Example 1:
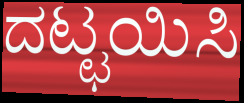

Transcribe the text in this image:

ದಟ್ಟಯಿಸಿ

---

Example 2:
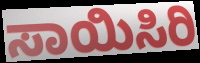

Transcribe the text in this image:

ಸಾಯಿಸಿರಿ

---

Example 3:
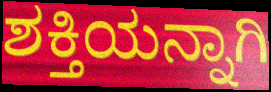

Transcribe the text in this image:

ಶಕ್ತಿಯನ್ನಾಗಿ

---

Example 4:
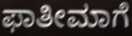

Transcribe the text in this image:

ಫಾತೀಮಾಗೆ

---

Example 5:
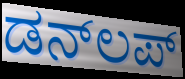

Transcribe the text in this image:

ಡನ್‌ಲಪ್